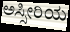
ಅಸ್ಸೀರಿಯ